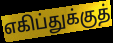
எகிப்துக்குத்